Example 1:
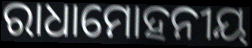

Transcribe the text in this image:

ରାଧାମୋହନୀୟ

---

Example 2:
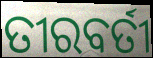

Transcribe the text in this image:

ତୀରବର୍ତୀ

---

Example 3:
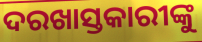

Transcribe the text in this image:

ଦରଖାସ୍ତକାରୀଙ୍କୁ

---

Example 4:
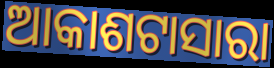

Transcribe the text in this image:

ଆକାଶଟାସାରା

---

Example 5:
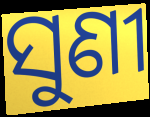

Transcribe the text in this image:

ସୁଣୀ